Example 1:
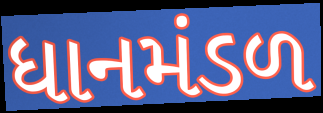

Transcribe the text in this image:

ધાનમંડળ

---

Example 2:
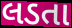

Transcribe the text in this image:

લડતા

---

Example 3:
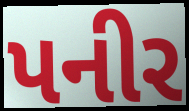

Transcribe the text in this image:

પનીર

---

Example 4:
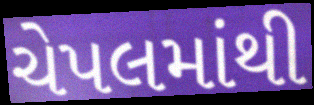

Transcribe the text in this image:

ચેપલમાંથી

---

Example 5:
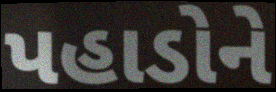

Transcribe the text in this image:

પહાડોને